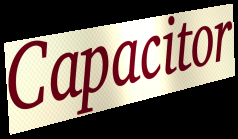
Capacitor